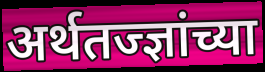
अर्थतज्ज्ञांच्या